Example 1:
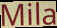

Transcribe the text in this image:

Mila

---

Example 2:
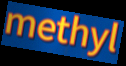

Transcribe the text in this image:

methyl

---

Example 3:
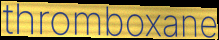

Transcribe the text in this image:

thromboxane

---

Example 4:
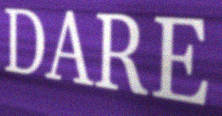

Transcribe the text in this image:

DARE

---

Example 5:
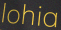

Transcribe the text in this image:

lohia